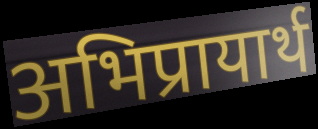
अभिप्रायार्थ